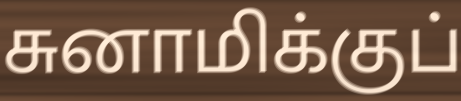
சுனாமிக்குப்